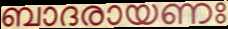
ബാദരായണഃ